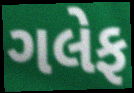
ગલેફ